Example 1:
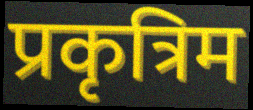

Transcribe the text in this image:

प्रकृत्रिम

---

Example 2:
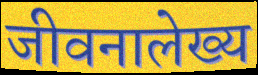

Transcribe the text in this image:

जीवनालेख्य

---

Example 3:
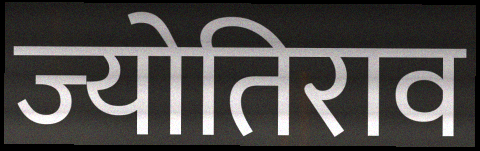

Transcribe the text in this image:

ज्‍योतिराव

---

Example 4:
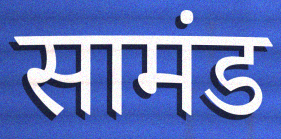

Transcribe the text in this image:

सामंड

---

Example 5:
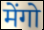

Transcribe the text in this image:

मेंगो